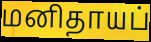
மனிதாயப்